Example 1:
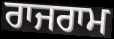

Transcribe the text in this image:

ਰਾਜਰਾਮ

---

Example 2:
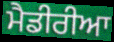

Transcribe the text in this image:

ਮੈਡੀਰੀਆ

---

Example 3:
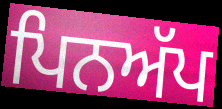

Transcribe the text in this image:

ਪਿਨਅੱਪ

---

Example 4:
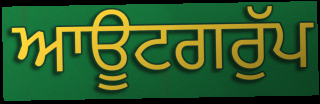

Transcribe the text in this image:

ਆਊਟਗਰੁੱਪ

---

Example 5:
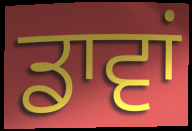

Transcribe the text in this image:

ਡਾਵਾਂ